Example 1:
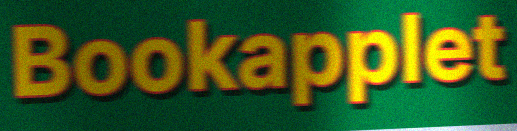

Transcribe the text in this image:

Bookapplet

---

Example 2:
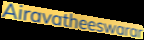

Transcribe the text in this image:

Airavatheeswarar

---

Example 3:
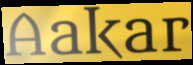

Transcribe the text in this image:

Aakar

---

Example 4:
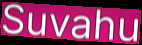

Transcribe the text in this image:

Suvahu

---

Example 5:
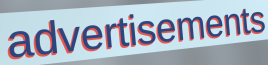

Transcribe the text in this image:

advertisements